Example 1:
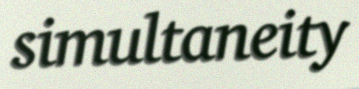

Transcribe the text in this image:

simultaneity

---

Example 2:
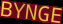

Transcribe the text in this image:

BYNGE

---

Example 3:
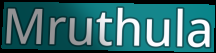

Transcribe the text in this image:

Mruthula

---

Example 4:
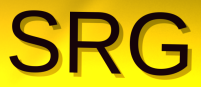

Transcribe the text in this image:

SRG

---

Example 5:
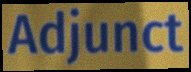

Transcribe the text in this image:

Adjunct